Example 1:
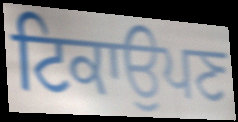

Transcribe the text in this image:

ਟਿਕਾਉਪਣ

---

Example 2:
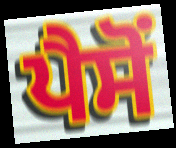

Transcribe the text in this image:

ਪੈਸੋਂ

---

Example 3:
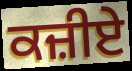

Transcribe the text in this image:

ਕਜ਼ੀਏ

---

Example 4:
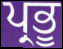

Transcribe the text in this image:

ਪ੍ਰਭੂ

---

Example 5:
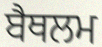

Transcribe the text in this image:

ਬੈਥਲਮ